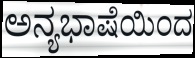
ಅನ್ಯಭಾಷೆಯಿಂದ